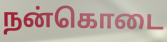
நன்கொடை